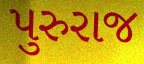
પુરુરાજ